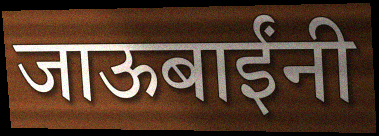
जाऊबाईंनी